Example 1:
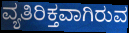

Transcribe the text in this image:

ವ್ಯತಿರಿಕ್ತವಾಗಿರುವ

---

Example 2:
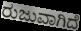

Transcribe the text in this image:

ರುಜುವಾಗಿದೆ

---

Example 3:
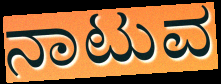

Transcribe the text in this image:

ನಾಟುವ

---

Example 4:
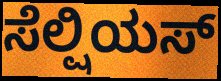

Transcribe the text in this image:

ಸೆಲ್ಷಿಯಸ್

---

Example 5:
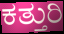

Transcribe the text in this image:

ಕತ್ತುರಿ